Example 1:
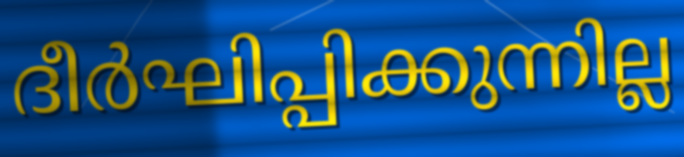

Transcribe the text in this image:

ദീർഘിപ്പിക്കുന്നില്ല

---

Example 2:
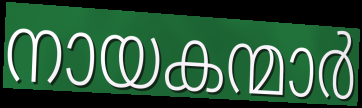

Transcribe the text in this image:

നായകന്മാർ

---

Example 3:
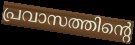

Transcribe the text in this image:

പ്രവാസത്തിന്റെ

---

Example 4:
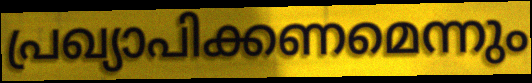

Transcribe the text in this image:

പ്രഖ്യാപിക്കണമെന്നും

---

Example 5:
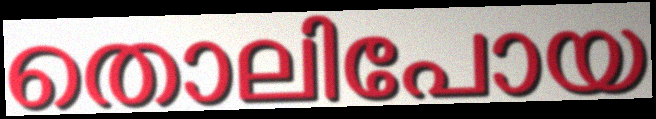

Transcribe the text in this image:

തൊലിപോയ